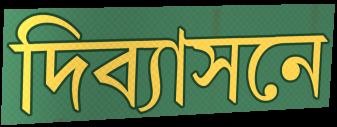
দিব্যাসনে